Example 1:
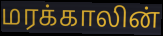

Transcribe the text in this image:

மரக்காலின்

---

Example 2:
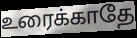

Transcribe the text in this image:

உரைக்காதே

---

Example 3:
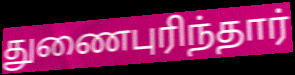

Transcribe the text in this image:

துணைபுரிந்தார்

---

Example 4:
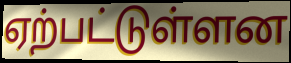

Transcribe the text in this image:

ஏற்பட்டுள்ளன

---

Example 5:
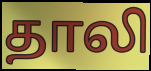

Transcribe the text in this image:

தாலி